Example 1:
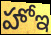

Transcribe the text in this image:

హోఇ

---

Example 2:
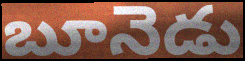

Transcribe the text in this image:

బూనెడు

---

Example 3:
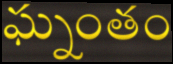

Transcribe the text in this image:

ఘ్నంతం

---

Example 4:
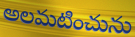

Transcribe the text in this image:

అలమటించును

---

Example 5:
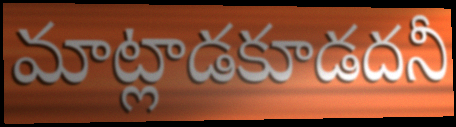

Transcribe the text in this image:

మాట్లాడకూడదనీ